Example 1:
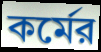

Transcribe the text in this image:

কর্মের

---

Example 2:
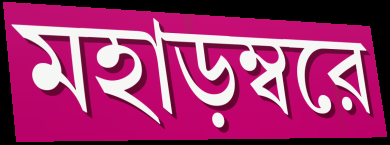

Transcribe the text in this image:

মহাড়ম্বরে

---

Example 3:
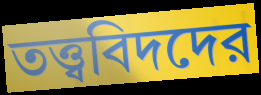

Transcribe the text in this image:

তত্ত্ববিদদের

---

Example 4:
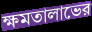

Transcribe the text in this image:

ক্ষমতালাভের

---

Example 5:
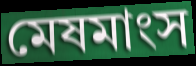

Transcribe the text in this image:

মেষমাংস